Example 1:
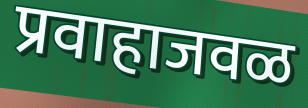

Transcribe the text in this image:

प्रवाहाजवळ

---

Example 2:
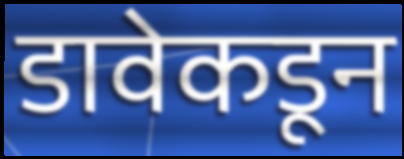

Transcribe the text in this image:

डावेकडून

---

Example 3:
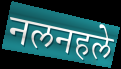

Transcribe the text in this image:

नलनहले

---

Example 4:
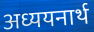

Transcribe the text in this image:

अध्ययनार्थ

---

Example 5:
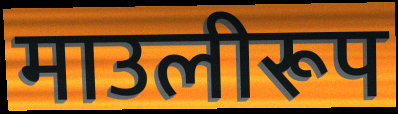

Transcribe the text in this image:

माउलीरूप